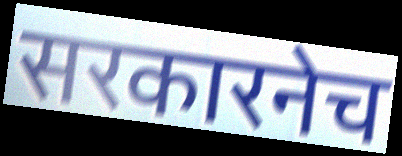
सरकारनेच